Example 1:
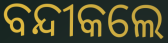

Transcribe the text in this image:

ବନ୍ଦୀକଲେ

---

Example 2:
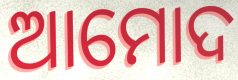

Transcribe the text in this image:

ଆମୋଦ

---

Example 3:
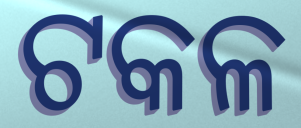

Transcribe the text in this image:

ଟକଳ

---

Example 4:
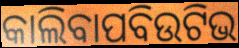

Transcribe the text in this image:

କାଲିବାପବିଉଟିଭ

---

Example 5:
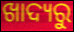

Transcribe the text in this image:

ଖାଦ୍ୟରୁ